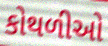
કોથળીઓ